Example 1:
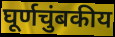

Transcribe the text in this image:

घूर्णचुंबकीय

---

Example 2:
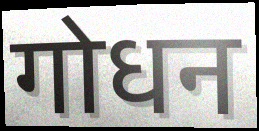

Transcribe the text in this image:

गोधन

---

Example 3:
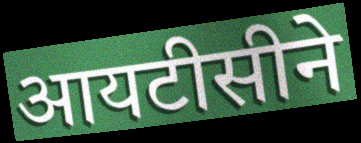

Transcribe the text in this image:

आयटीसीने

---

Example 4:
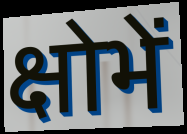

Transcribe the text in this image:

क्षोभें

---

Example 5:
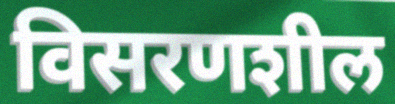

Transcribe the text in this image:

विसरणशील